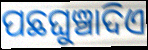
ପଛଘୁଞ୍ଚାଦିଏ